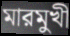
মারমুখী